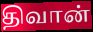
திவான்